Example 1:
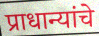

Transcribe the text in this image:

प्राधान्यांचे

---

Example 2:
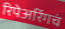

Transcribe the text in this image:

रिपेअरिंगचं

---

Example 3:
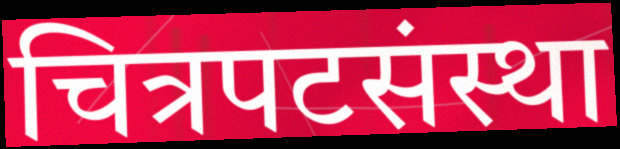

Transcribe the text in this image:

चित्रपटसंस्था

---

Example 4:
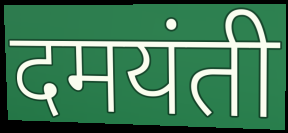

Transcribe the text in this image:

दमयंती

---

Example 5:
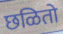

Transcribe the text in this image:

छळितो